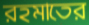
রহমাতের